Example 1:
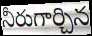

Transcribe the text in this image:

నీరుగార్చిన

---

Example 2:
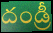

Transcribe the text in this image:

దండ్రీ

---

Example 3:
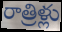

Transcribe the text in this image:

రాత్రిళ్లు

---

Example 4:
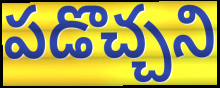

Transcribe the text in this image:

పడొచ్చని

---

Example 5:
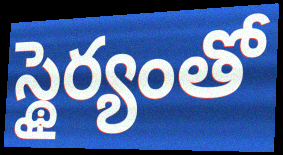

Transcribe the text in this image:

స్థైర్యంతో